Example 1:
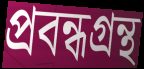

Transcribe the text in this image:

প্রবন্ধগ্রন্থ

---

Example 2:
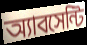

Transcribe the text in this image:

অ্যাবসেন্টি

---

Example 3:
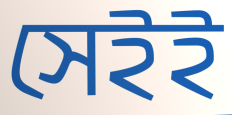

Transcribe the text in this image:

সেইই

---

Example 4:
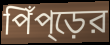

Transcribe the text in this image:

পিঁপ্‌ড়ের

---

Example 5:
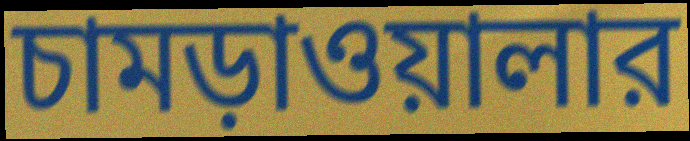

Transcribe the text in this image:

চামড়াওয়ালার